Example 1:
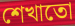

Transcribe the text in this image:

শেখাতো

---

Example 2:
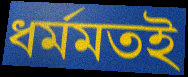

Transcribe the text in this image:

ধর্মমতই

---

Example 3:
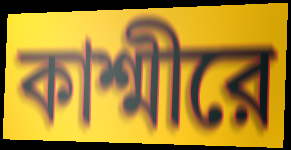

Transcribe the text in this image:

কাশ্মীরে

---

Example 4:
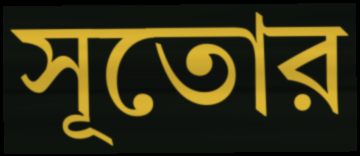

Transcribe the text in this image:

সূতোর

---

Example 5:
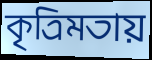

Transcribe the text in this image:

কৃত্রিমতায়